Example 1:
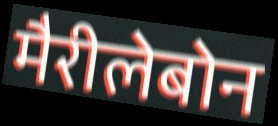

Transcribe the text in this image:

मैरीलेबोन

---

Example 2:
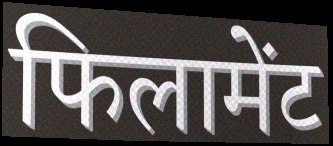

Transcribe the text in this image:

फिलामेंट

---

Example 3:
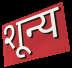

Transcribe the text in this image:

शून्य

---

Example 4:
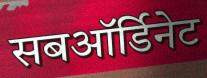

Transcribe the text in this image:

सबऑर्डिनेट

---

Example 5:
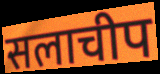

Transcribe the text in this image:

सलाचीप